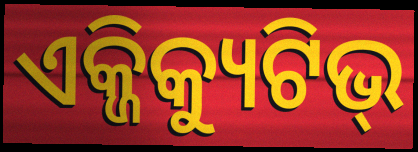
ଏକ୍ଜିକ୍ୟୁଟିଭ୍